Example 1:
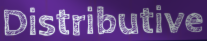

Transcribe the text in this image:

Distributive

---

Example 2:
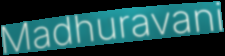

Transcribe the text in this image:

Madhuravani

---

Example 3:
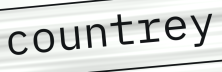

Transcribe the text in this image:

countrey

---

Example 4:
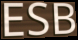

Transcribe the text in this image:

ESB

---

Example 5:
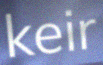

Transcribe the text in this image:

keir